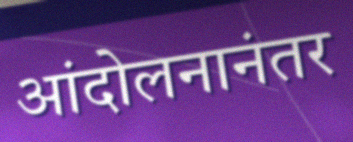
आंदोलनानंतर